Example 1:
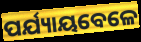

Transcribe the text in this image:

ପର୍ଯ୍ୟାୟବେଳେ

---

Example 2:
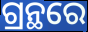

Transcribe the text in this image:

ଗ୍ରନ୍ଥରେ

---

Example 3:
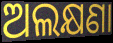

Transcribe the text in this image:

ଅଲକ୍ଷଣା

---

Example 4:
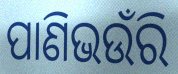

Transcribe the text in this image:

ପାଣିଭଉଁରି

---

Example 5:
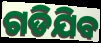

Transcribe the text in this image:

ଗଡିଯିବ